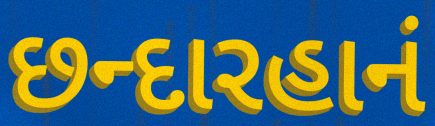
છન્દારહાનં